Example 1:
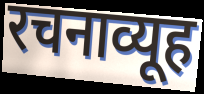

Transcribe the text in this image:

रचनाव्यूह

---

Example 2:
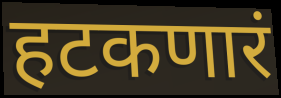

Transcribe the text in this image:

हटकणारं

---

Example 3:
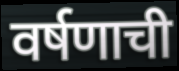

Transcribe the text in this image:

वर्षणाची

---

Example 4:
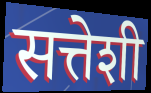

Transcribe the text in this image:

सत्तेशी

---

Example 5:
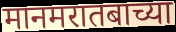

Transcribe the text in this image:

मानमरातबाच्या